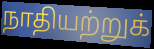
நாதியற்றுக்